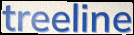
treeline